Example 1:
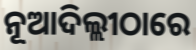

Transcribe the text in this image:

ନୂଆଦିଲ୍ଲୀଠାରେ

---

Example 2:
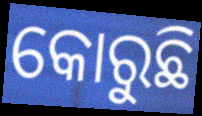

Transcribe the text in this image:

କୋରୁଛି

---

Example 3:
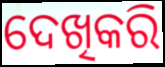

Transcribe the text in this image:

ଦେଖିକରି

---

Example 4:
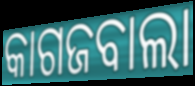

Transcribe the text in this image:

କାଗଜବାଲା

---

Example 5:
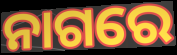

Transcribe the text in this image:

ନାଗରେ